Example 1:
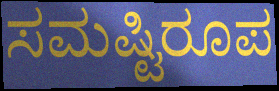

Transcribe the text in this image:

ಸಮಷ್ಟಿರೂಪ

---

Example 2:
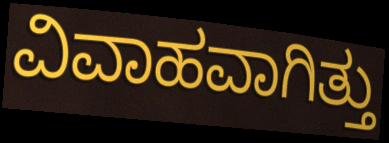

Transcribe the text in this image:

ವಿವಾಹವಾಗಿತ್ತು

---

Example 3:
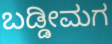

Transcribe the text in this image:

ಬಡ್ಡೀಮಗ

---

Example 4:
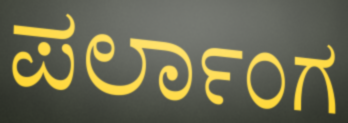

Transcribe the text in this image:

ಪರ್ಲಾಂಗ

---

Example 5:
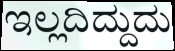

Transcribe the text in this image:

ಇಲ್ಲದಿದ್ದುದು